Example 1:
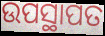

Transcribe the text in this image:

ଉପସ୍ଥାପତ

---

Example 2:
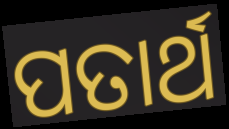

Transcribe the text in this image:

ପତାର୍ଥ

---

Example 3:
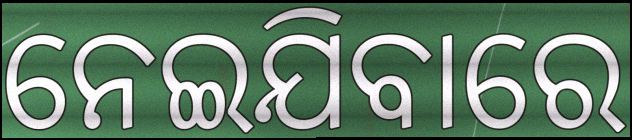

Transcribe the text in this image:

ନେଇଯିବାରେ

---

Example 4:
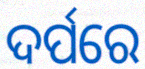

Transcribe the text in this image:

ଦର୍ପରେ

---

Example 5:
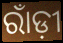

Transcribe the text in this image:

ରାଁଡ଼ୀ